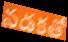
నడకతో